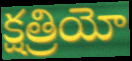
క్షత్రియో